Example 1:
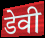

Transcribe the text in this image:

डेवी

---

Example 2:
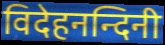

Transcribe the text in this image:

विदेहनन्दिनी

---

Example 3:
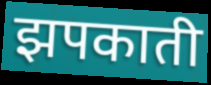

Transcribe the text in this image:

झपकाती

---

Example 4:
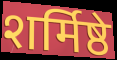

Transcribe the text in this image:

शर्मिष्ठे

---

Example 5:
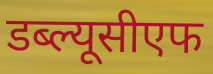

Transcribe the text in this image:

डब्ल्यूसीएफ